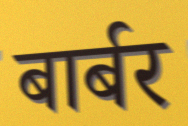
बार्बर